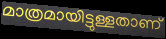
മാത്രമായിട്ടുള്ളതാണ്